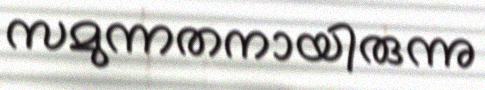
സമുന്നതനായിരുന്നു